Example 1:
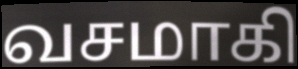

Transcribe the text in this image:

வசமாகி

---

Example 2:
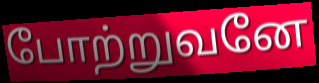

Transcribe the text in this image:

போற்றுவனே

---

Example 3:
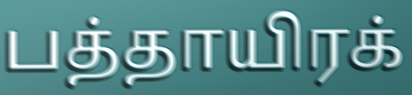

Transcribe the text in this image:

பத்தாயிரக்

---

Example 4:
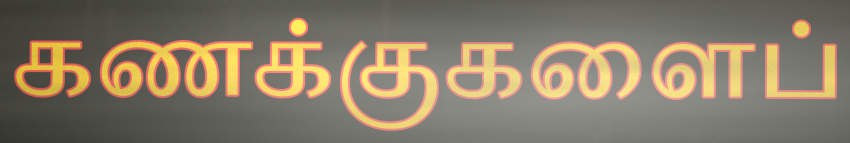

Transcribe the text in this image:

கணக்குகளைப்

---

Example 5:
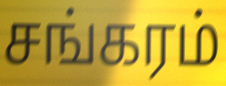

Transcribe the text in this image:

சங்கரம்